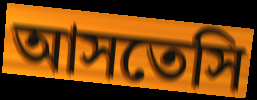
আসতেসি